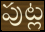
పుట్ల